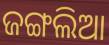
ଜଙ୍ଗଲିଆ